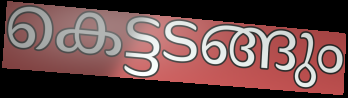
കെട്ടടങ്ങും